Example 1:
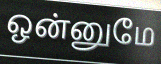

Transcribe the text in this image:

ஒன்னுமே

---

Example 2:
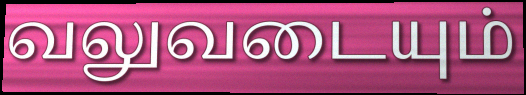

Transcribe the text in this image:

வலுவடையும்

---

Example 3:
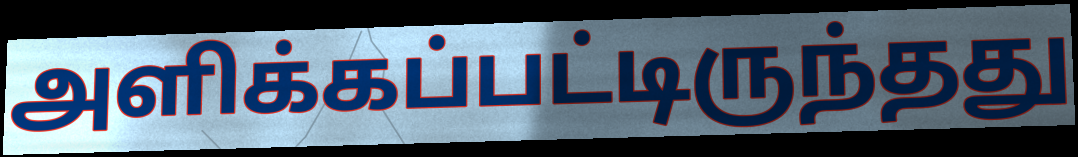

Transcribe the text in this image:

அளிக்கப்பட்டிருந்தது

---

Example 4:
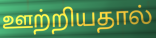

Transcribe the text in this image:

ஊற்றியதால்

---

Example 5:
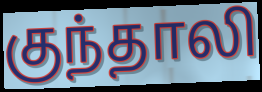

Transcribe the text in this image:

குந்தாலி